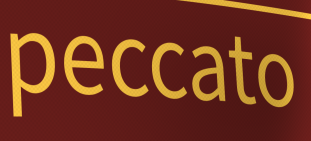
peccato